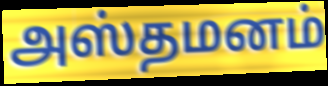
அஸ்தமனம்